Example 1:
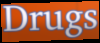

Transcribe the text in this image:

Drugs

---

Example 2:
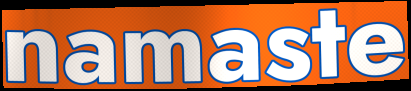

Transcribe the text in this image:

namaste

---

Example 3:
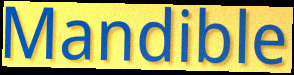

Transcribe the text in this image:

Mandible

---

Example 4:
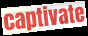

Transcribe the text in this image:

captivate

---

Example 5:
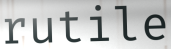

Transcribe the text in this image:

rutile